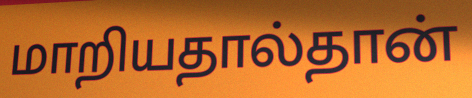
மாறியதால்தான்